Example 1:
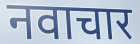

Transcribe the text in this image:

नवाचार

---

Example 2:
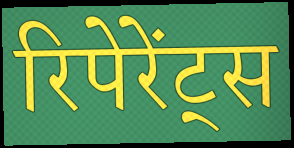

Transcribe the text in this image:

रिपेरेंट्स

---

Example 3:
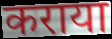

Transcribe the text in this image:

कराया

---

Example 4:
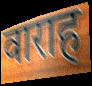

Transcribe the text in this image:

वाराह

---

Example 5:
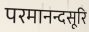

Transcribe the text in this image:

परमानन्दसूरि